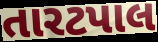
તારટપાલ